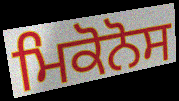
ਮਿਕੋਨੋਸ